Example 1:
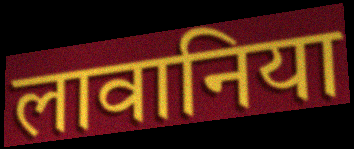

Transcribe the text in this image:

लावानिया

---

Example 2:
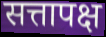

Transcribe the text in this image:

सत्तापक्ष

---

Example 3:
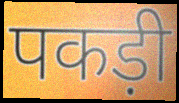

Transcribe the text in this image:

पकड़ी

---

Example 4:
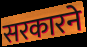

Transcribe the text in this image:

सरकारने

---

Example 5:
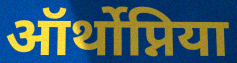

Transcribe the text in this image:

ऑर्थोप्निया